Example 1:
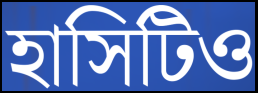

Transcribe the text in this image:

হাসিটিও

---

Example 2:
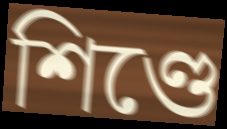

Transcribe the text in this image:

শিণ্ডে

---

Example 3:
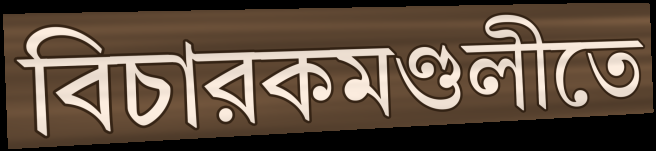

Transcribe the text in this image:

বিচারকমণ্ডলীতে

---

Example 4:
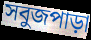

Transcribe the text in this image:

সবুজপাড়া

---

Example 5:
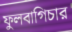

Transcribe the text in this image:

ফুলবাগিচার